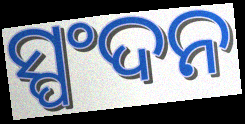
ସ୍ପଂଦନ